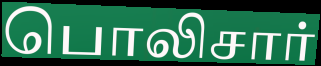
பொலிசார்